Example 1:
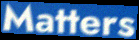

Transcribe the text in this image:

Matters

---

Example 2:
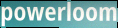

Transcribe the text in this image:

powerloom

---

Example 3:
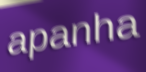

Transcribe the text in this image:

apanha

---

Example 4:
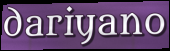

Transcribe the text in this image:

dariyano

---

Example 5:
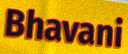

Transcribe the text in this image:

Bhavani